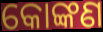
କୋଙ୍କଣ